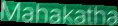
Mahakatha